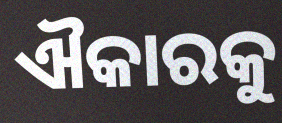
ଐକାରକୁ